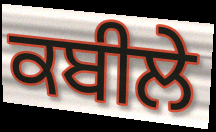
ਕਬੀਲੇ